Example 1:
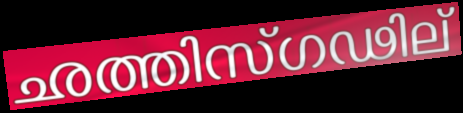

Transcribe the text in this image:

ഛത്തിസ്ഗഢില്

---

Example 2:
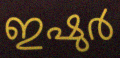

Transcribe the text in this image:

ഇഷുർ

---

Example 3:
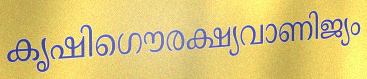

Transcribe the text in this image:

കൃഷിഗൌരക്ഷ്യവാണിജ്യം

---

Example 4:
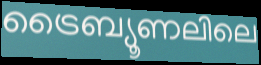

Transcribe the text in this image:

ട്രൈബ്യൂണലിലെ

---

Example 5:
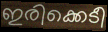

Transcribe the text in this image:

ഇരിക്കെടീ